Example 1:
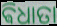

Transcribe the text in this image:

ଵିଧାତା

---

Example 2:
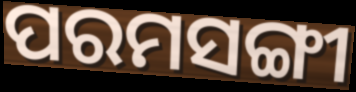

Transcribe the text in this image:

ପରମସଙ୍ଗୀ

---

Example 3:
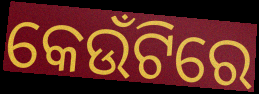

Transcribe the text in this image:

କେଉଁଟିରେ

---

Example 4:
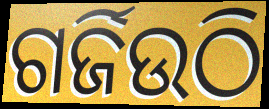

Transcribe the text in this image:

ଗର୍ଜିଉଠି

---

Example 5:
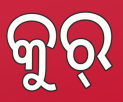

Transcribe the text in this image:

କୁର୍